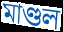
মাণ্ডল